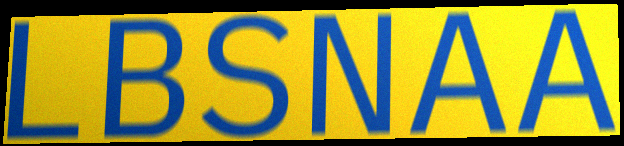
LBSNAA